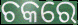
ଚକରେ